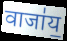
वाजा॑य॒